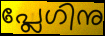
പ്ലേഗിനു